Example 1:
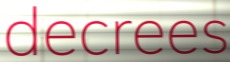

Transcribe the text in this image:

decrees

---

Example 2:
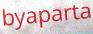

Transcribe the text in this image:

byaparta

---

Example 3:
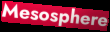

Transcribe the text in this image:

Mesosphere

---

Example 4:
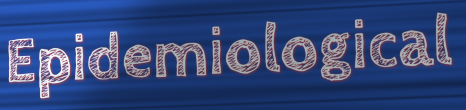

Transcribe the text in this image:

Epidemiological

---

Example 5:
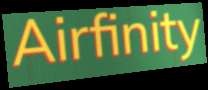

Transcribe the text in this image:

Airfinity